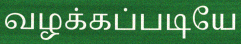
வழக்கப்படியே